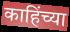
काहिंच्या